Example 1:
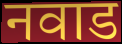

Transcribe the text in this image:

नवाड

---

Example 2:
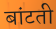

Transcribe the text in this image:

बांटती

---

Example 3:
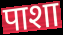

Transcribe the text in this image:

पाशा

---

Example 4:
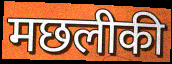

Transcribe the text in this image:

मछलीकी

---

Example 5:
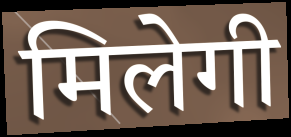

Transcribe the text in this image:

मिलेगी